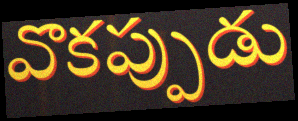
వొకప్పుడు